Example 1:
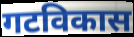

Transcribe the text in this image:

गटविकास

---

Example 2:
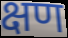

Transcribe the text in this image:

क्षण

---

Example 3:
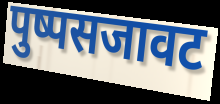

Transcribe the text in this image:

पुष्पसजावट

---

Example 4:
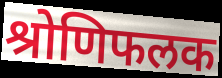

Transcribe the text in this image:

श्रोणिफलक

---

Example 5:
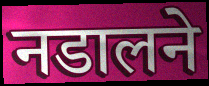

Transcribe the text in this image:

नडालने